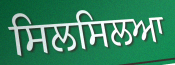
ਸਿਲਸਿਲਆ